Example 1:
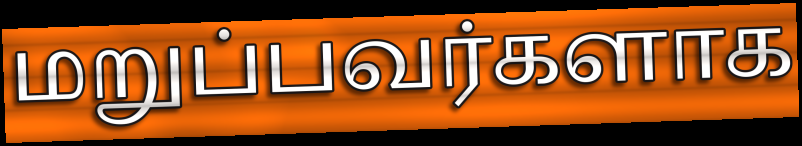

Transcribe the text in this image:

மறுப்பவர்களாக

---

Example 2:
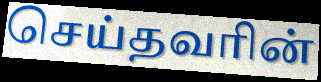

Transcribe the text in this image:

செய்தவரின்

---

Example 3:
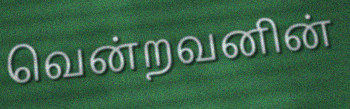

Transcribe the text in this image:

வென்றவனின்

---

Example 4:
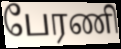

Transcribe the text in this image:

பேரணி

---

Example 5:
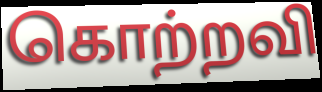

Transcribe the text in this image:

கொற்றவி